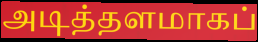
அடித்தளமாகப்